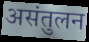
असंतुलन